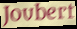
Joubert